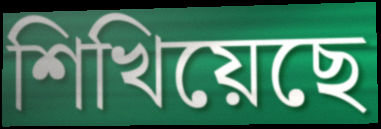
শিখিয়েছে